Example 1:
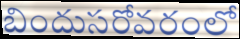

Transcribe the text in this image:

బిందుసరోవరంలో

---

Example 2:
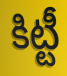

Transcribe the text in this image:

కిట్టీ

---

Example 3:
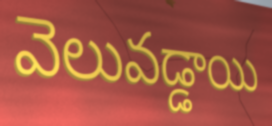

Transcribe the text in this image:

వెలువడ్డాయి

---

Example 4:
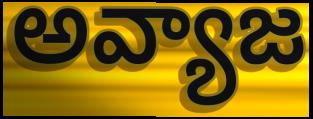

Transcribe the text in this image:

అవ్యాజ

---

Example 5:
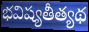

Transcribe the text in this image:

భవిష్యతీత్యథ